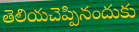
తెలియచెప్పినందుకు